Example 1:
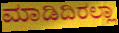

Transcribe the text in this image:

ಮಾಡಿದಿರಲ್ಲಾ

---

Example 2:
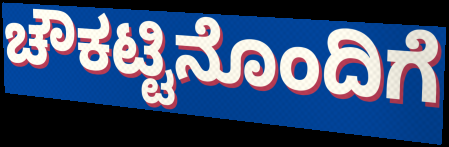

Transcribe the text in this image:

ಚೌಕಟ್ಟಿನೊಂದಿಗೆ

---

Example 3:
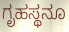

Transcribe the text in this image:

ಗೃಹಸ್ಥನೂ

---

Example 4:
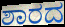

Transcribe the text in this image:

ಶಾರದ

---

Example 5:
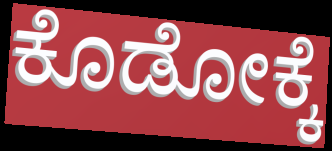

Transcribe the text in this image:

ಕೊಡೋಕ್ಕೆ